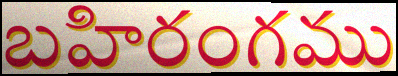
బహిరంగము